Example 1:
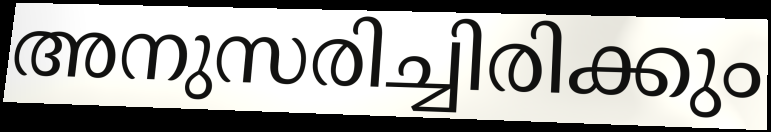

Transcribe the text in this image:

അനുസരിച്ചിരിക്കും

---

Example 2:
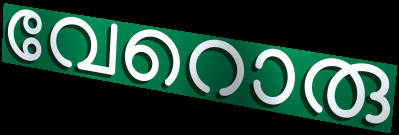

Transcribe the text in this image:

വേറൊരു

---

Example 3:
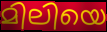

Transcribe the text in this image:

മിലിയെ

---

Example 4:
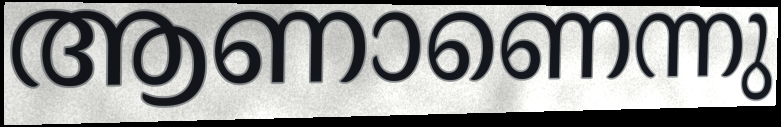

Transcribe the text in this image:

ആണാണെന്നു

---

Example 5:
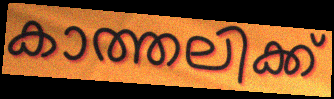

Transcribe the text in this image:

കാത്തലിക്ക്